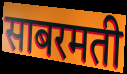
साबरमती